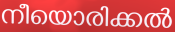
നീയൊരിക്കൽ